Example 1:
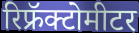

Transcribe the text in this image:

रिफ्रॅक्टोमीटर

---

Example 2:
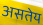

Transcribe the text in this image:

असतेय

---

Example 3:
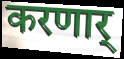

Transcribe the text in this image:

करणार्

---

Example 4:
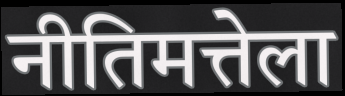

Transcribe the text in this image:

नीतिमत्तेला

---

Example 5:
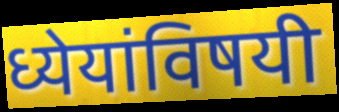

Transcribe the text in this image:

ध्येयांविषयी